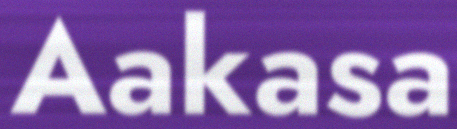
Aakasa